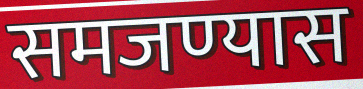
समजण्यास